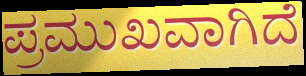
ಪ್ರಮುಖವಾಗಿದೆ